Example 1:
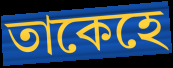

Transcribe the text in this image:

তাকেহে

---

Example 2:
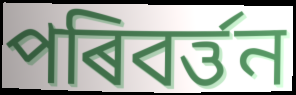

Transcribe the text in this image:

পৰিবৰ্ত্তন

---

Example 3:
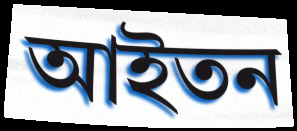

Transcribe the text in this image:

আইতন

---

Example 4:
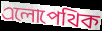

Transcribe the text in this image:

এলোপেথিক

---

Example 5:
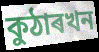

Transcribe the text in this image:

কুঠাৰখন